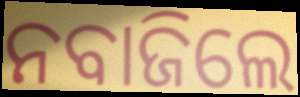
ନବାଜିଲେ